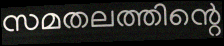
സമതലത്തിന്റെ